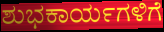
ಶುಭಕಾರ್ಯಗಳಿಗೆ